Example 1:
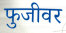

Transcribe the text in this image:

फुजीवर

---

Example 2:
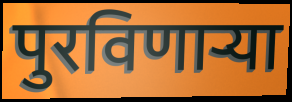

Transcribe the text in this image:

पुरविणाऱ्या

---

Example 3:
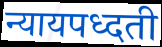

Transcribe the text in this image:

न्यायपध्दती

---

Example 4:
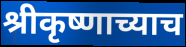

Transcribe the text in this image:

श्रीकृष्णाच्याच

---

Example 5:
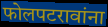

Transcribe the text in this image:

फोलपटरावांना